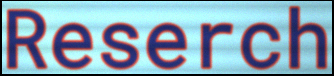
Reserch